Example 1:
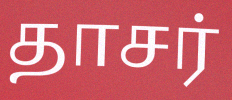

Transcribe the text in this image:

தாசர்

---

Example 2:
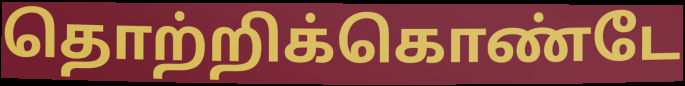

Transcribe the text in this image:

தொற்றிக்கொண்டே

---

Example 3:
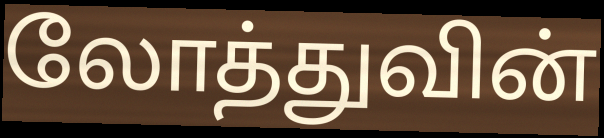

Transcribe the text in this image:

லோத்துவின்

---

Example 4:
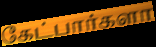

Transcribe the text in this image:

கேட்பார்களா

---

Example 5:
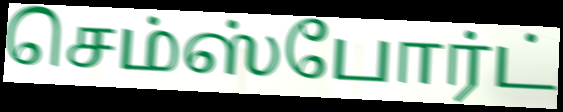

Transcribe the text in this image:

செம்ஸ்போர்ட்